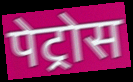
पेट्रोस